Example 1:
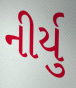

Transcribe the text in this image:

નીર્યુ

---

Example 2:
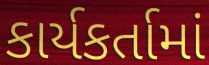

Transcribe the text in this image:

કાર્યકર્તામાં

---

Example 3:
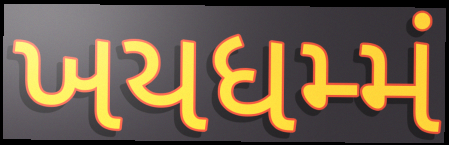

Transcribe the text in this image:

ખયધમ્મં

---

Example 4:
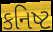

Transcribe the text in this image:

કનિષ્ટ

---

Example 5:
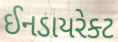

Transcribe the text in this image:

ઈનડાયરેક્ટ